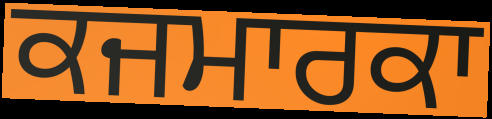
ਕਜਮਾਰਕਾ